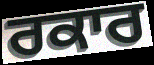
ਰਕਾਰ